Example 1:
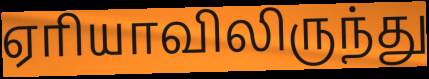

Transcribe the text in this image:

ஏரியாவிலிருந்து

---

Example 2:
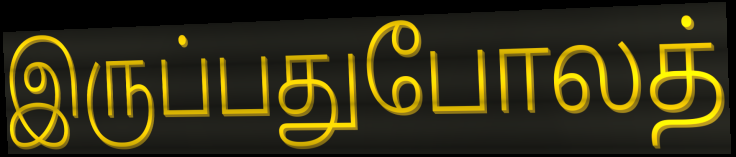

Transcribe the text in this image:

இருப்பதுபோலத்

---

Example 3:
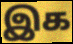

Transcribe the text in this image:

இக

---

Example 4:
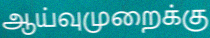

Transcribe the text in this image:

ஆய்வுமுறைக்கு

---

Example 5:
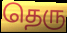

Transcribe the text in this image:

தெரு